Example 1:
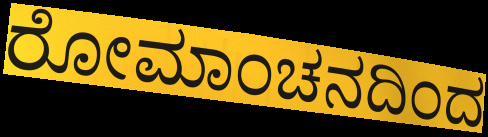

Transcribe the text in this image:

ರೋಮಾಂಚನದಿಂದ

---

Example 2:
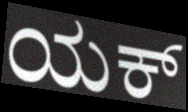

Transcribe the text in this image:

ಯಕ್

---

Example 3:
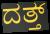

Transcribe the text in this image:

ದತ್ತ್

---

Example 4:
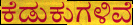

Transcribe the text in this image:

ಕೆಡುಕುಗಳಿವೆ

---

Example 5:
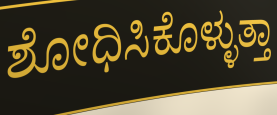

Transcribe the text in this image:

ಶೋಧಿಸಿಕೊಳ್ಳುತ್ತಾ